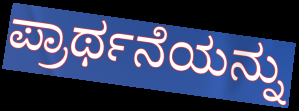
ಪ್ರಾರ್ಥನೆಯನ್ನು